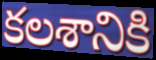
కలశానికి